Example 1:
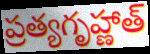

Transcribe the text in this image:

ప్రత్యగృహ్ణాత్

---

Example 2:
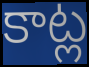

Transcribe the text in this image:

కాట్ల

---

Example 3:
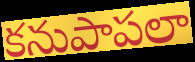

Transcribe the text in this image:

కనుపాపలా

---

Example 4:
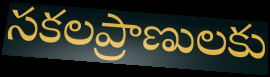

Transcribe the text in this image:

సకలప్రాణులకు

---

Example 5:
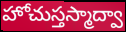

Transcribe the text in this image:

హోచుస్తస్మాద్వా